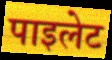
पाइलेट